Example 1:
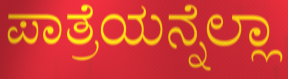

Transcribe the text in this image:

ಪಾತ್ರೆಯನ್ನೆಲ್ಲಾ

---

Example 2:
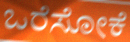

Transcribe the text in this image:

ಒರೆಸೋಕೆ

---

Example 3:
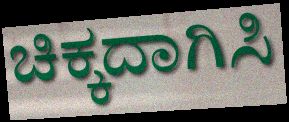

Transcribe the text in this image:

ಚಿಕ್ಕದಾಗಿಸಿ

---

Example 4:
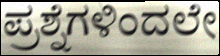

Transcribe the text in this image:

ಪ್ರಶ್ನೆಗಳಿಂದಲೇ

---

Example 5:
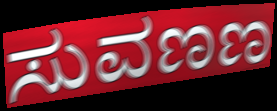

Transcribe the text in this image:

ಸುವಣಣ